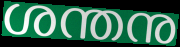
ശന്തനു